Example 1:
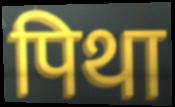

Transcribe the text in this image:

पिथा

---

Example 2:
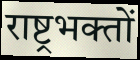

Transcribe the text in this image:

राष्ट्रभक्तों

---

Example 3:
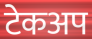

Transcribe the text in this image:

टेकअप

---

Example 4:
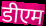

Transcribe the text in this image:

डीएम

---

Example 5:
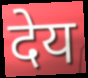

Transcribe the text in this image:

देय